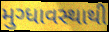
મુગ્ધાવસ્થાથી